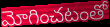
మోగించటంతో